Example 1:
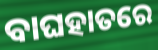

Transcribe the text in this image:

ବାଘହାତରେ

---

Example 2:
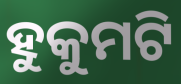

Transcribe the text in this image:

ହୁକୁମଟି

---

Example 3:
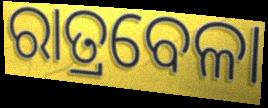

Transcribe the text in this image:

ରାତ୍ରବେଳା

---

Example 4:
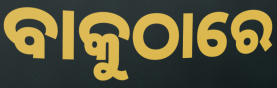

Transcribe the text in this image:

ବାକୁଠାରେ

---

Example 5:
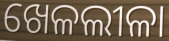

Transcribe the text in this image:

ଖେଳଲୀଳା